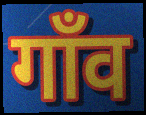
गाँव